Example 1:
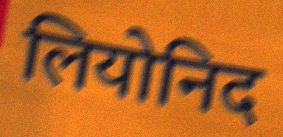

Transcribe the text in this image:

लियोनिद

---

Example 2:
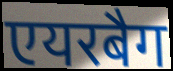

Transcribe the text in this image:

एयरबैग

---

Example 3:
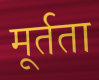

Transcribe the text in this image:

मूर्तता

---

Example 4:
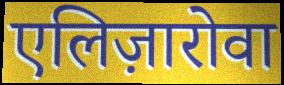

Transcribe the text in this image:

एलिज़ारोवा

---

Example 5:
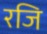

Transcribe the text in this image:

रजि